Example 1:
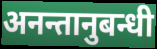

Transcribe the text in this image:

अनन्तानुबन्धी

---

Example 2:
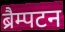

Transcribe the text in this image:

ब्रैम्पटन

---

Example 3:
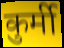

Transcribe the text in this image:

कुर्मी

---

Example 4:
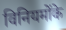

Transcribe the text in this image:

विनियमोंके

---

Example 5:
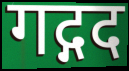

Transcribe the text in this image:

गद्गद